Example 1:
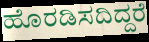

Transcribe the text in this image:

ಹೊರಡಿಸದಿದ್ದರೆ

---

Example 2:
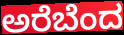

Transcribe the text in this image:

ಅರೆಬೆಂದ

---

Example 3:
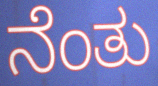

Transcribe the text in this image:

ನೆಂತು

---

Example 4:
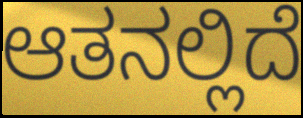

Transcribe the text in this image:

ಆತನಲ್ಲಿದೆ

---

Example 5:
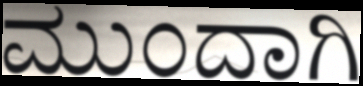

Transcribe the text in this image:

ಮುಂದಾಗಿ